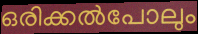
ഒരിക്കൽപോലും